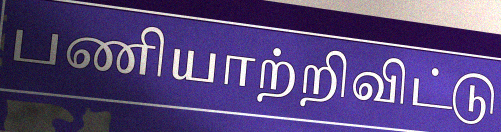
பணியாற்றிவிட்டு